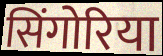
सिंगोरिया